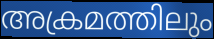
അക്രമത്തിലും